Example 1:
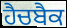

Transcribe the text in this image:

ਹੈਚਬੈਕ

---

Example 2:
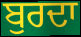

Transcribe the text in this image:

ਬੁਰਦਾ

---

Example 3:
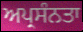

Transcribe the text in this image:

ਅਪ੍ਰਸੰਨਤਾ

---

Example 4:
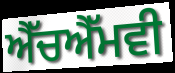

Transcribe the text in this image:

ਐੱਚਐੱਮਵੀ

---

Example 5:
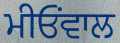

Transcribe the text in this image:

ਮੀਓਂਵਾਲ